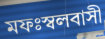
মফঃস্বলবাসী